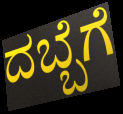
ದಬ್ಬೆಗೆ